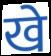
खे